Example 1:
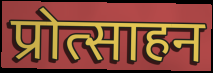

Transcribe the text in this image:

प्रोत्‍साहन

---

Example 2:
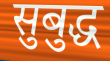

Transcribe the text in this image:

सुबुद्ध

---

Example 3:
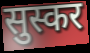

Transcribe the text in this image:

सुस्कर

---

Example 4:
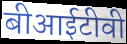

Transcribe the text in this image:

बीआईटीवी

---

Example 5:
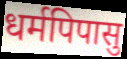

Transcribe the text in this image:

धर्मपिपासु